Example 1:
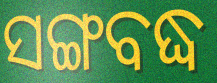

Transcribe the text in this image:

ସଙ୍ଗବଦ୍ଧ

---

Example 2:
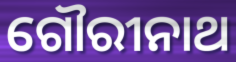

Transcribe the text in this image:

ଗୌରୀନାଥ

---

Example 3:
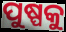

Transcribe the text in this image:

ପୁଷ୍ପକୁ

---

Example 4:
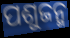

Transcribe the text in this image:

ପଶୁଜନ୍ମ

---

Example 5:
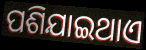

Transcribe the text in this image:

ପଶିଯାଇଥାଏ